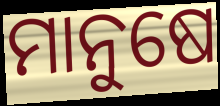
ମାନୁଷେ